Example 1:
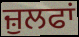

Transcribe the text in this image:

ਜ਼ੁਲਫਾਂ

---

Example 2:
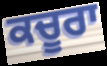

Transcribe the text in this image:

ਕਚੂਰਾ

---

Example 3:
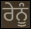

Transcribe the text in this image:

ਰੇਨੂੰ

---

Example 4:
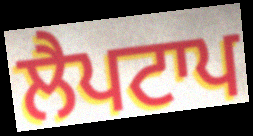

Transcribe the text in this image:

ਲੈਪਟਾਪ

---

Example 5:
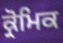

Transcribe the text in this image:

ਕ੍ਰੋਮਿਕ